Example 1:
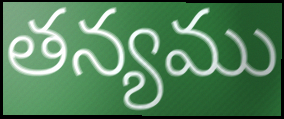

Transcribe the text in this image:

తన్యము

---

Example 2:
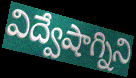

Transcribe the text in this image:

విద్వేషాగ్నిని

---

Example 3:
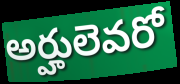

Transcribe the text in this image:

అర్హులెవరో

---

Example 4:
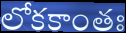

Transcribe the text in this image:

లోకకాంతః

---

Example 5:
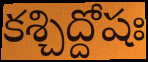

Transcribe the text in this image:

కశ్చిద్దోషః